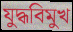
যুদ্ধবিমুখ